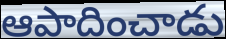
ఆపాదించాడు